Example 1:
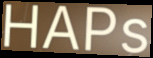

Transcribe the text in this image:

HAPs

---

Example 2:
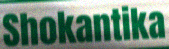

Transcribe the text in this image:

Shokantika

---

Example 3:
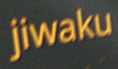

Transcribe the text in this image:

jiwaku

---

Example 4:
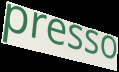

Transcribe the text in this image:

presso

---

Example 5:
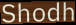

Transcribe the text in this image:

Shodh